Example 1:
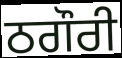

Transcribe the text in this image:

ਠਗੌਰੀ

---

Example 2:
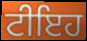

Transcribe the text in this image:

ਟੀਇਹ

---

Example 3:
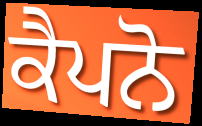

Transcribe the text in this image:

ਕੈਪਨੋ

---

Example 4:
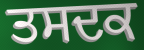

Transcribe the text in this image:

ਤਸਦਕ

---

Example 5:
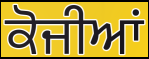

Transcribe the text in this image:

ਕੋਜੀਆਂ